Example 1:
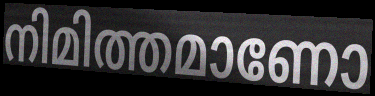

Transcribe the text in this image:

നിമിത്തമാണോ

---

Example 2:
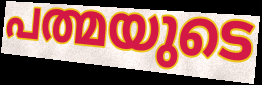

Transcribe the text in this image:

പത്മയുടെ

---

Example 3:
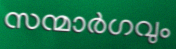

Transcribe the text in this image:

സന്മാർഗവും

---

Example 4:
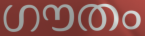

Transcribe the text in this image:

ഗൗതം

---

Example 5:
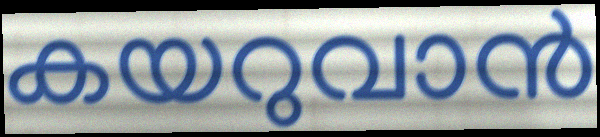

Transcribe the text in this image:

കയറുവാൻ